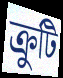
ক্ৰুটি